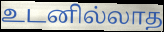
உடனில்லாத